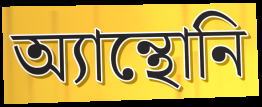
অ্যান্থোনি